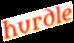
hurdle